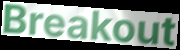
Breakout